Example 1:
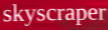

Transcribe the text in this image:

skyscraper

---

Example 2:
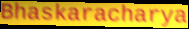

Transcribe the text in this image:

Bhaskaracharya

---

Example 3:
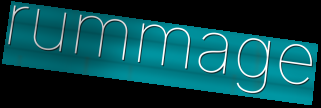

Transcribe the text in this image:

rummage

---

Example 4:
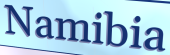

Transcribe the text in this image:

Namibia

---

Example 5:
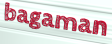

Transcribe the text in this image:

bagaman